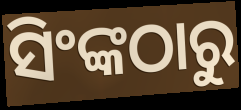
ସିଂଙ୍କଠାରୁ